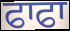
ਫਾਫਾ